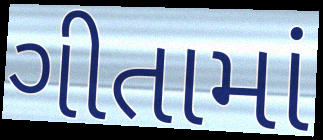
ગીતામાં